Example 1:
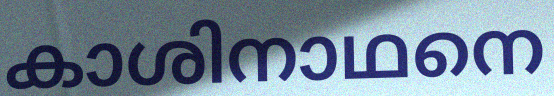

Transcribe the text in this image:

കാശിനാഥനെ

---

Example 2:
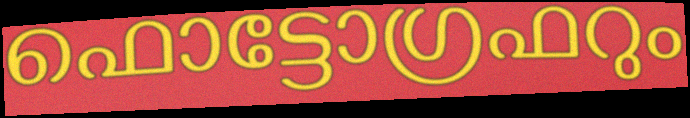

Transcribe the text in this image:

ഫൊട്ടോഗ്രഫറും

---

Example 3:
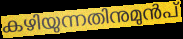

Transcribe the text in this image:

കഴിയുന്നതിനുമുൻപ്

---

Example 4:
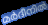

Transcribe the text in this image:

മർദീനിൽ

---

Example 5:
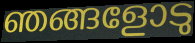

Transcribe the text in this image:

ഞങ്ങളോടു